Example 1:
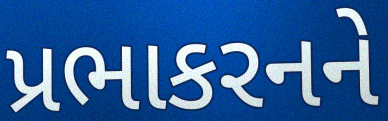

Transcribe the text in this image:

પ્રભાકરનને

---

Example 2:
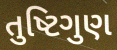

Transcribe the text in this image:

તુષ્ટિગુણ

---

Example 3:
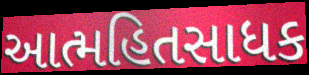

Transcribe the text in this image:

આત્મહિતસાધક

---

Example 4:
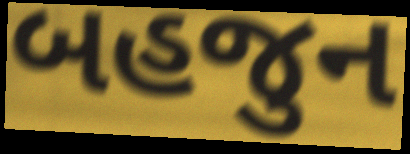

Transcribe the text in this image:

બહજુન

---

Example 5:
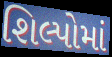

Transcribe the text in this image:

શિલ્પોમાં